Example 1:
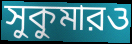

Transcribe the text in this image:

সুকুমারও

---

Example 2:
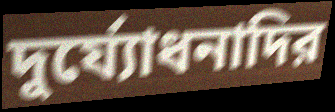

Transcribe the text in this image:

দুর্য্যোধনাদির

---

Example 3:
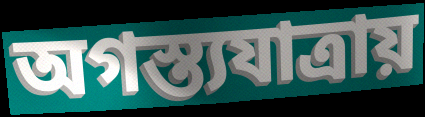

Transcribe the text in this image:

অগস্ত্যযাত্রায়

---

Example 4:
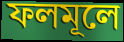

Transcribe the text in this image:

ফলমূলে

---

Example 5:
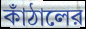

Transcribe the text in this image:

কাঁঠালের